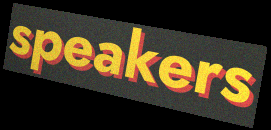
speakers